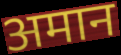
अमान